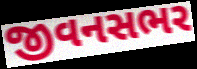
જીવનસભર